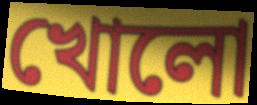
খোলো